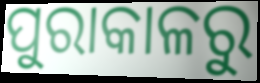
ପୁରାକାଳରୁ